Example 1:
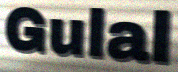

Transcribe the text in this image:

Gulal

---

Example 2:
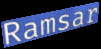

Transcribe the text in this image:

Ramsar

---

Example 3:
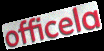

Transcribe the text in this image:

officela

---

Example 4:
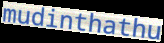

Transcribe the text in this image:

mudinthathu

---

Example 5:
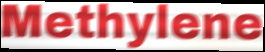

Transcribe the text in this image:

Methylene